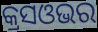
କ୍ରସଓଭର